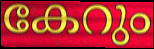
കേറും